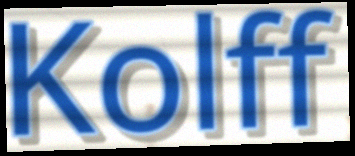
Kolff